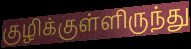
குழிக்குள்ளிருந்து